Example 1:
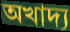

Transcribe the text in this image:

অখাদ্য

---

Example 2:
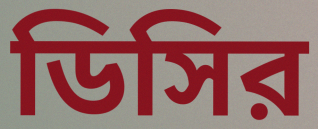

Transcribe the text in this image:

ডিসির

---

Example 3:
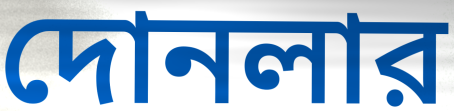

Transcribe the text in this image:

দোনলার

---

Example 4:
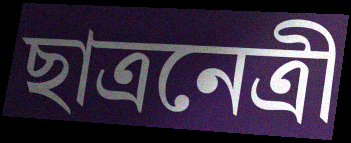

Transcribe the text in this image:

ছাত্রনেত্রী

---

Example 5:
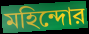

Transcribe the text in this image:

মহিন্দোর